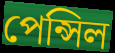
পেন্সিল